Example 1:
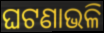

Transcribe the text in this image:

ଘଟଣାଭଳି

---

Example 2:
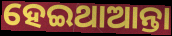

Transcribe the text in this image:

ହେଇଥାଆନ୍ତା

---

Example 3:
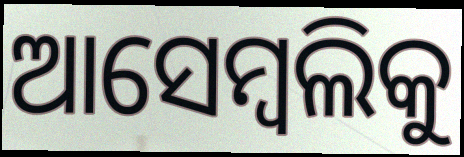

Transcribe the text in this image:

ଆସେମ୍ବଲିକୁ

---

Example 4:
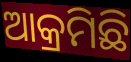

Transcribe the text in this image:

ଆକ୍ରମିଛି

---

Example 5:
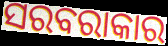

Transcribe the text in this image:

ସରବରାକାର